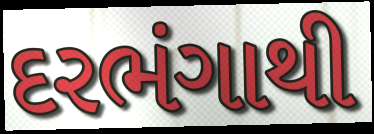
દરભંગાથી